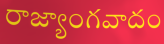
రాజ్యాంగవాదం